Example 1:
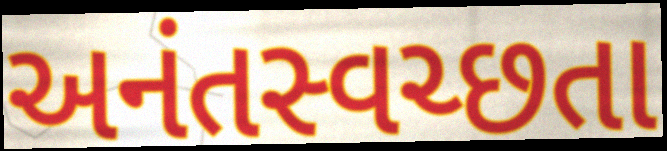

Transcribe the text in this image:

અનંતસ્વચ્છતા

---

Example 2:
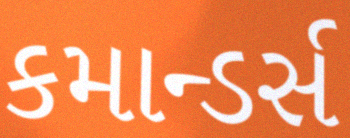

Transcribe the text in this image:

કમાન્ડર્સ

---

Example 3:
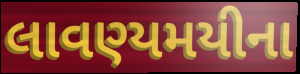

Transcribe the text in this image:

લાવણ્યમયીના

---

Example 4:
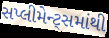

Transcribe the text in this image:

સપ્લીમેન્ટ્સમાંથી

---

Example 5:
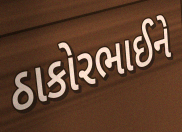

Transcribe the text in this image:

ઠાકોરભાઈને